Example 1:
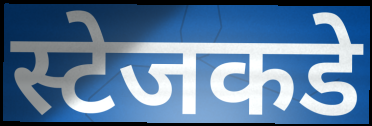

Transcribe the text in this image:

स्टेजकडे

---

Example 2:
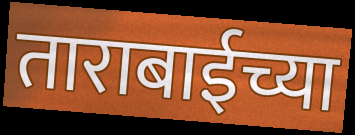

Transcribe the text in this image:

ताराबाईच्या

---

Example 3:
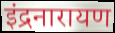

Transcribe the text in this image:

इंद्रनारायण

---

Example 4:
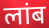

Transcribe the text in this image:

लांब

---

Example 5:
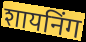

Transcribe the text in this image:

शायनिंग